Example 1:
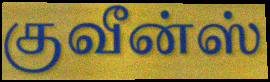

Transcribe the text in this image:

குவீன்ஸ்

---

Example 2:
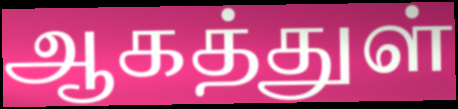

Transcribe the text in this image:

ஆகத்துள்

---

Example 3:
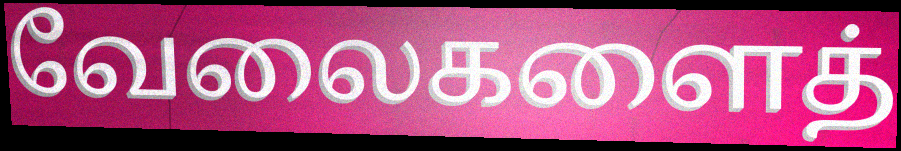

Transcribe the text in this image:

வேலைகளைத்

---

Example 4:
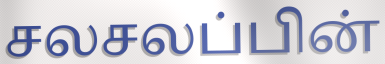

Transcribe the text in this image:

சலசலப்பின்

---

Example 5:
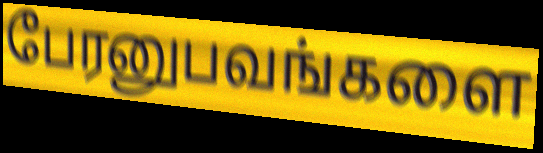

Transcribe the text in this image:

பேரனுபவங்களை